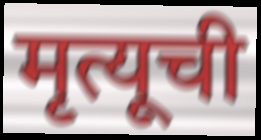
मृत्यूची